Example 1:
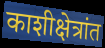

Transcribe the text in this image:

काशीक्षेत्रांत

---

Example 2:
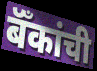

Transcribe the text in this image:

बॅँकांची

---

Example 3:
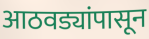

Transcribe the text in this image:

आठवड्यांपासून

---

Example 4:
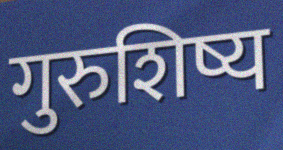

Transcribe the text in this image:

गुरुशिष्य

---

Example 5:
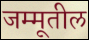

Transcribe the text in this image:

जम्मूतील